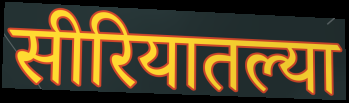
सीरियातल्या